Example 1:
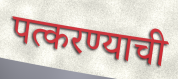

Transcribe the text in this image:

पत्करण्याची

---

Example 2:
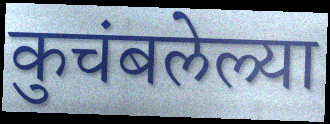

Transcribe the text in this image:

कुचंबलेल्या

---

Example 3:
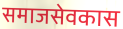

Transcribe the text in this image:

समाजसेवकास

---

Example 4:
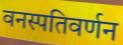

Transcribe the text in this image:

वनस्पतिवर्णन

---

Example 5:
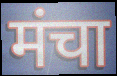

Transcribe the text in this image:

मंचा